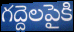
గద్దెలపైకి